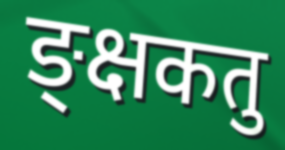
ङ्क्षकतु